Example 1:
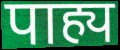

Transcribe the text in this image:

पाह्य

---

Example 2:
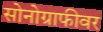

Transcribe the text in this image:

सोनोग्राफीवर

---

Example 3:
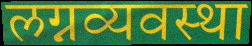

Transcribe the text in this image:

लग्नव्यवस्था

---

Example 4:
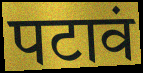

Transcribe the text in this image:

पटावं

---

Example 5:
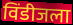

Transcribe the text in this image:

विंडीजला